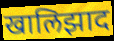
खालिझाद